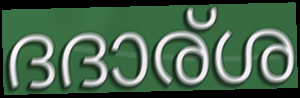
ദദാര്ശ